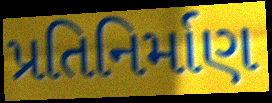
પ્રતિનિર્માણ